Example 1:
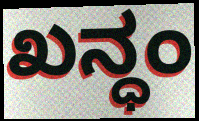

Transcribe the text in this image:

ಖನ್ಧಂ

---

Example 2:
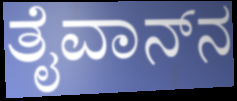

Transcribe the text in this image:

ತೈವಾನ್‌ನ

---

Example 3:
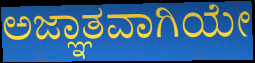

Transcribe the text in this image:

ಅಜ್ಞಾತವಾಗಿಯೇ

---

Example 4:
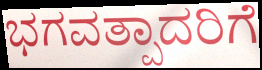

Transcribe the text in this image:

ಭಗವತ್ಪಾದರಿಗೆ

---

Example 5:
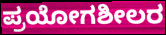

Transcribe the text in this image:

ಪ್ರಯೋಗಶೀಲರ